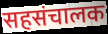
सहसंचालक